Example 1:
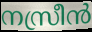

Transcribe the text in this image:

നസ്രീൻ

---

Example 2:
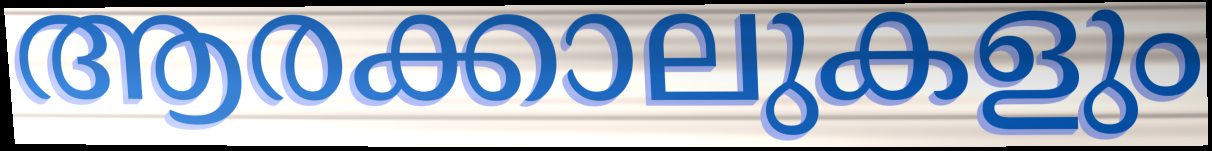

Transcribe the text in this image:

ആരക്കാലുകളും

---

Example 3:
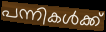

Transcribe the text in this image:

പന്നികൾക്ക്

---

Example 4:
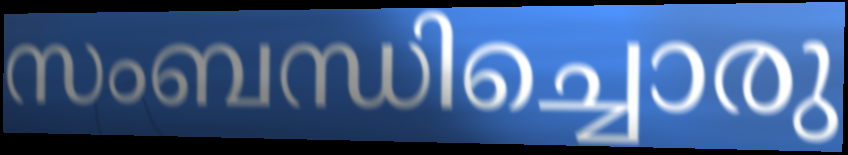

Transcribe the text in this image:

സംബന്ധിച്ചൊരു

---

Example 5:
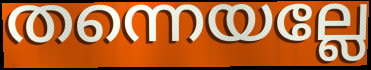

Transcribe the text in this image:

തന്നെയല്ലേ